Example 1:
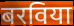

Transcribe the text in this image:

बरविया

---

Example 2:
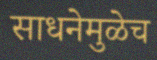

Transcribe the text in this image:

साधनेमुळेच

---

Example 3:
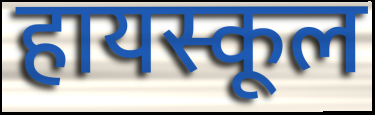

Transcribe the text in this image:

हायस्कूल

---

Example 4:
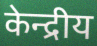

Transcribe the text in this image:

केन्द्रीय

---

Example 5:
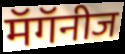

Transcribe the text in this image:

मॅगॅनीज